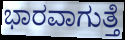
ಭಾರವಾಗುತ್ತೆ